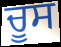
ਚੂਸ